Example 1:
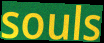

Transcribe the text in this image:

souls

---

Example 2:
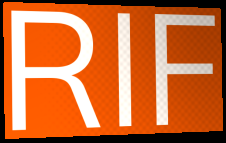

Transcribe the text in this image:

RIF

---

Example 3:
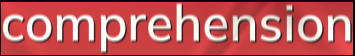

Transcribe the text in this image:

comprehension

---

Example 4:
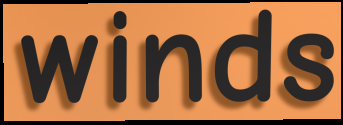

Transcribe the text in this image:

winds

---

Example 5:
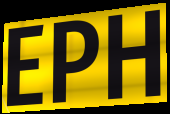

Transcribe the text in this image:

EPH